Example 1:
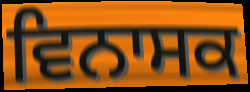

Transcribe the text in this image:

ਵਿਨਾਸਕ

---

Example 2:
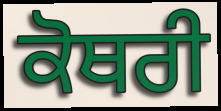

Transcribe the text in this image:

ਕੋਥਰੀ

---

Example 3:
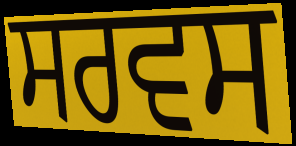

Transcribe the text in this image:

ਸਰਵਸ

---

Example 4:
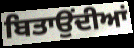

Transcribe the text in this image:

ਬਿਤਾਉਂਦੀਆਂ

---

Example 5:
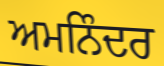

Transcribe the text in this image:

ਅਮਨਿੰਦਰ